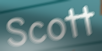
Scott